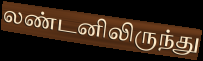
லண்டனிலிருந்து